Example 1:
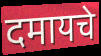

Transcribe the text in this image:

दमायचे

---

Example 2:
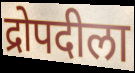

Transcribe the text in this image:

द्रोपदीला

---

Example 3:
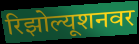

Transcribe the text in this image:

रिझोल्यूशनवर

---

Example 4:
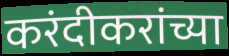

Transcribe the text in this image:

करंदीकरांच्या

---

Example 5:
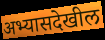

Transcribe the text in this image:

अभ्यासदेखील